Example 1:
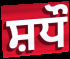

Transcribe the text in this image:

ਸ਼ਧੌ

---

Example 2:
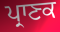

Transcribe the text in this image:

ਪ੍ਰਾਣਕ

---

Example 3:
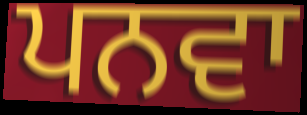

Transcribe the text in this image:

ਪਨਵਾ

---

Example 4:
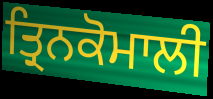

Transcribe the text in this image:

ਤ੍ਰਿਨਕੋਮਾਲੀ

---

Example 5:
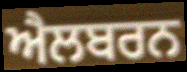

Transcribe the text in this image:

ਐਲਬਰਨ